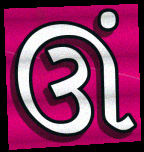
ઊં